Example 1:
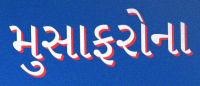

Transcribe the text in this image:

મુસાફરોના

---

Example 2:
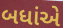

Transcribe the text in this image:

બધાંએ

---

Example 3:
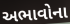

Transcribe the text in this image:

અભાવોના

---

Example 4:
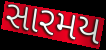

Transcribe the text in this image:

સારમય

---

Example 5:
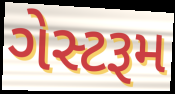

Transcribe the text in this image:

ગેસ્ટરૂમ